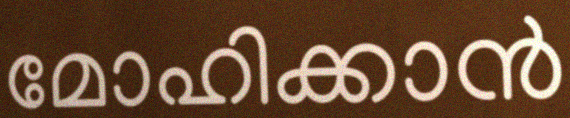
മോഹിക്കാൻ